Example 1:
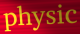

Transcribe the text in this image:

physic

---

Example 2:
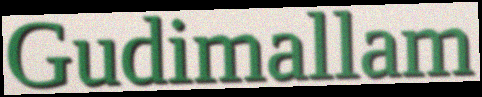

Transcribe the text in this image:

Gudimallam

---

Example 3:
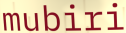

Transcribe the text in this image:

mubiri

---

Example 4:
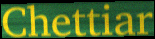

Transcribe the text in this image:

Chettiar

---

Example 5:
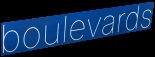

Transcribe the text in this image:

boulevards